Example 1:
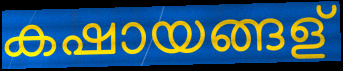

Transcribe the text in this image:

കഷായങ്ങള്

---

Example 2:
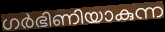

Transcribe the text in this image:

ഗർഭിണിയാകുന്ന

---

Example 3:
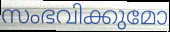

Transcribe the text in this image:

സംഭവിക്കുമോ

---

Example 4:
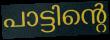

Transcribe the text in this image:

പാട്ടിന്റെ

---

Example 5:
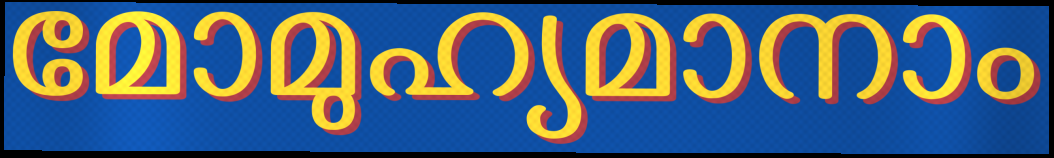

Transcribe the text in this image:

മോമുഹ്യമാനാം